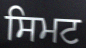
ਸਿਮਟ